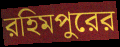
রহিমপুরের